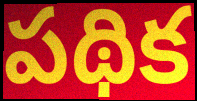
పథిక